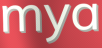
mya